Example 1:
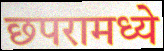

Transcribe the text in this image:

छपरामध्ये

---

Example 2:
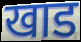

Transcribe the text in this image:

खाड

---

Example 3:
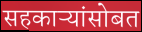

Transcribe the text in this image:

सहकाऱ्यांसोबत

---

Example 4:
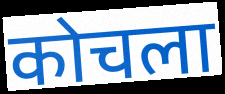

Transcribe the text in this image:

कोचला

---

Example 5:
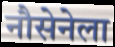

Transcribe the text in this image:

नौसेनेला